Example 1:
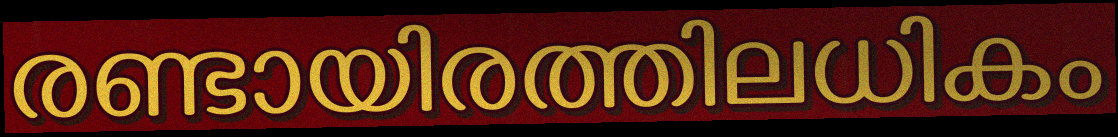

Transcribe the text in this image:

രണ്ടായിരത്തിലധികം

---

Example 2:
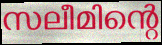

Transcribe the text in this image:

സലീമിന്റെ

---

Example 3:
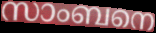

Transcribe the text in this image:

സാംബനെ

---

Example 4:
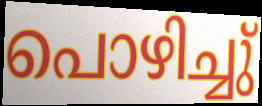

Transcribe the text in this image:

പൊഴിച്ചു്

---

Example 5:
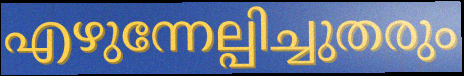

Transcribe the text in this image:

എഴുന്നേല്പിച്ചുതരും